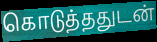
கொடுத்ததுடன்